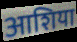
आशिया